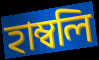
হাম্বলি